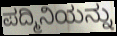
ಪದ್ಮಿನಿಯನ್ನು